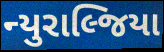
ન્યુરાલ્જિયા